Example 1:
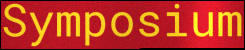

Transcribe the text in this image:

Symposium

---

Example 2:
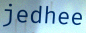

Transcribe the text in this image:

jedhee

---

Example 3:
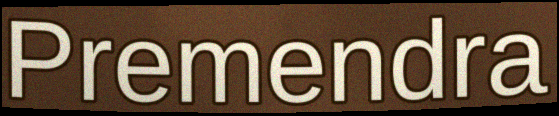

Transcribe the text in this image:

Premendra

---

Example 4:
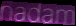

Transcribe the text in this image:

nadam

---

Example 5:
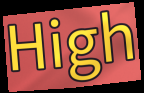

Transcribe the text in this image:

High